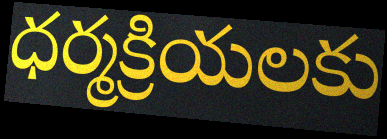
ధర్మక్రియలకు